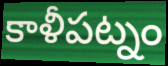
కాళీపట్నం